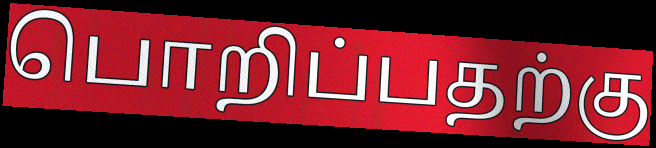
பொறிப்பதற்கு